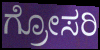
ಗ್ರೋಸರಿ